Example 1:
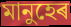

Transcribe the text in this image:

মানুহেৰ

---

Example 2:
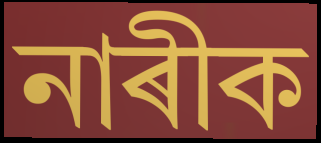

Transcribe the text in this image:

নাৰীক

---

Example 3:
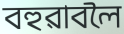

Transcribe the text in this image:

বহুৱাবলৈ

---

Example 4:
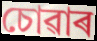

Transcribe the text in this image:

চোৱাৰ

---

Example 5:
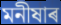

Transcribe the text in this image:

মনীষাৰ